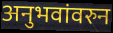
अनुभवांवरुन